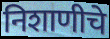
निशाणीचे